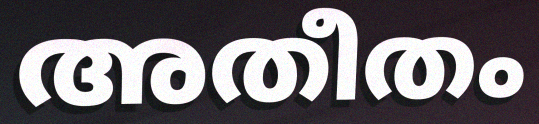
അതീതം